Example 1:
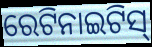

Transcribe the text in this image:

ରେଟିନାଇଟିସ୍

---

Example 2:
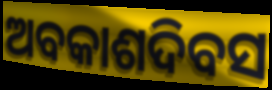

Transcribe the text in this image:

ଅବକାଶଦିବସ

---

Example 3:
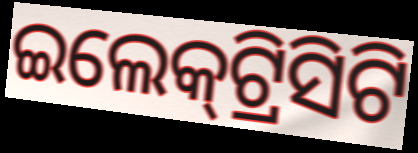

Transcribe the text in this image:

ଇଲେକ୍‌ଟ୍ରିସିଟି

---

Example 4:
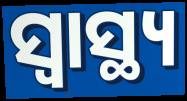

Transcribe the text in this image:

ସ୍ୱାସ୍ଥ୍ୟ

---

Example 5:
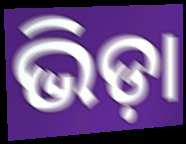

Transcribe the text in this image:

ଭିଡ଼ା